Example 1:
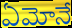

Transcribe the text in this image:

ఏమోనే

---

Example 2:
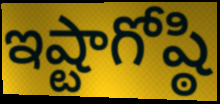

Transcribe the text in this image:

ఇష్టాగోష్ఠి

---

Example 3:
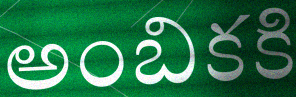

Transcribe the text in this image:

అంబికకి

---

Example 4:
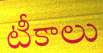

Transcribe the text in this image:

టీకాలు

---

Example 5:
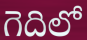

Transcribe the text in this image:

గెదిలో